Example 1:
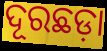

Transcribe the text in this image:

ଦୂରଛଡ଼ା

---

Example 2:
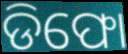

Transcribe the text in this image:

ଡିଫୋ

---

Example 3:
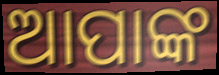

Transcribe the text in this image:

ଆପାଙ୍କ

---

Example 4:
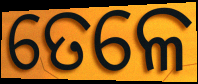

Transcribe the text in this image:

ତେଳେ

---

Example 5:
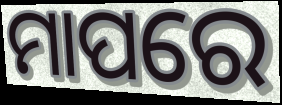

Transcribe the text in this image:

ମାପରେ